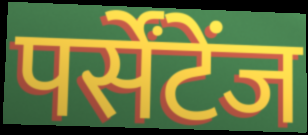
पर्सेंटेंज